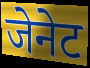
जेनेट